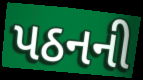
પઠનની